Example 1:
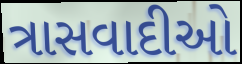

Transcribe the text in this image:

ત્રાસવાદીઓ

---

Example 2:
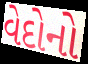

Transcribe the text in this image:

વેદોનો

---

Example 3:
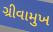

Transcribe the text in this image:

ગ્રીવામુખ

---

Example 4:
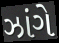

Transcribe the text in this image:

ઝાંગે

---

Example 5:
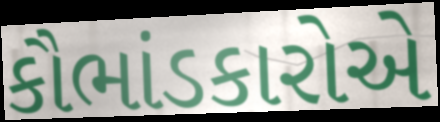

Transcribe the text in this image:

કૌભાંડકારોએ